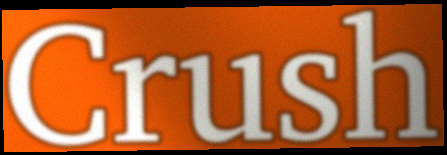
Crush